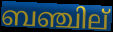
ബഞ്ചില്